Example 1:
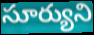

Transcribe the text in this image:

సూర్యుని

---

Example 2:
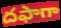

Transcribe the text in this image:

దఫాగా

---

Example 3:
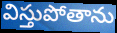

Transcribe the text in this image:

విస్తుపోతాను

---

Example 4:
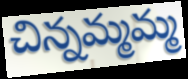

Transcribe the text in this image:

చిన్నమ్మమ్మ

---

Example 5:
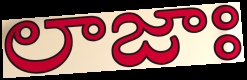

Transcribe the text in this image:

లాజాః